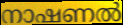
നാഷണൽ